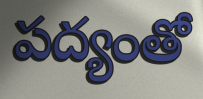
పద్యంతో